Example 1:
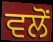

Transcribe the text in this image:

ਵਲੋਂ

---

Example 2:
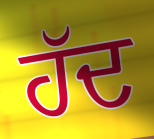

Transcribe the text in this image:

ਹੱਦ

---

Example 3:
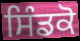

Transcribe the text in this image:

ਸਿੰਡਕੋ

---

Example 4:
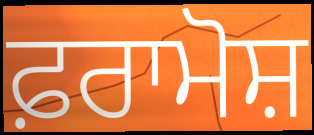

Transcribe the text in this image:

ਫ਼ਰਾਮੋਸ਼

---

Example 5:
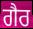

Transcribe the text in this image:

ਗੈਰ